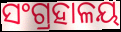
ସଂଗ୍ରହାଳୟ